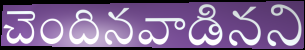
చెందినవాడినని